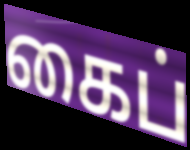
கைப்